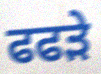
ਫਫੜੇ